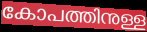
കോപത്തിനുള്ള